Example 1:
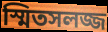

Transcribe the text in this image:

স্মিতসলজ্জ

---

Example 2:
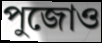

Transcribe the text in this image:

পুজোও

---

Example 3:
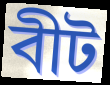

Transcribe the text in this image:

বীট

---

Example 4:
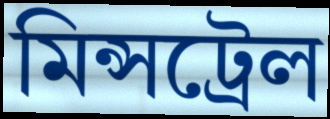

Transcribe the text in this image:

মিন্সট্রেল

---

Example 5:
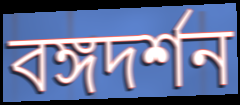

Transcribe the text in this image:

বঙ্গদর্শন